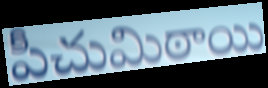
పీచుమిఠాయి